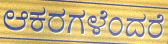
ಆಕರಗಳೆಂದರೆ